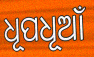
ଧୂପଧୂଆଁ